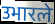
उभारले